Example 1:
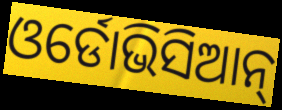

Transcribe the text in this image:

ଓର୍ଡୋଭିସିଆନ୍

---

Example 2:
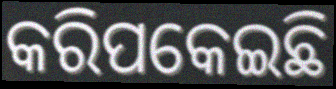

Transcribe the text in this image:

କରିପକେଇଛି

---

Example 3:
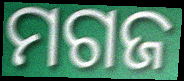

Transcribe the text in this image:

ମଗଜ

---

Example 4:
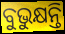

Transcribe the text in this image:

ବୁଭୁକ୍ଷନ୍ତି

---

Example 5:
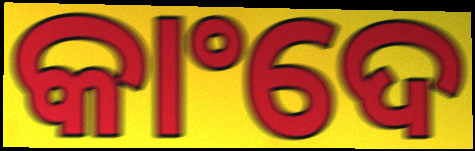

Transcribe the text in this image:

କାଂଦେ